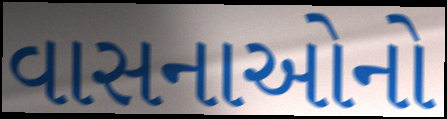
વાસનાઓનો